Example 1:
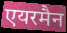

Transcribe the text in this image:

एयरमैन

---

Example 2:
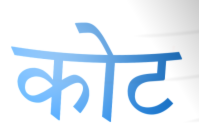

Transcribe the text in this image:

कोट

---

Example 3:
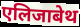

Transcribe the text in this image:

एलिजाबेथ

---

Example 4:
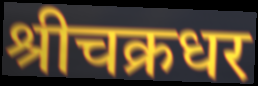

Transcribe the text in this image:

श्रीचक्रधर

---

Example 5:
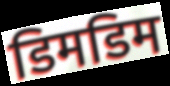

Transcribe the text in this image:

डिमडिम